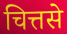
चित्तसे